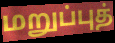
மறுப்புத்